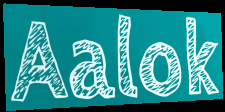
Aalok